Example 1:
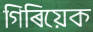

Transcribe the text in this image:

গিৰিয়েক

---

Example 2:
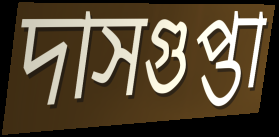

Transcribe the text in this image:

দাসগুপ্তা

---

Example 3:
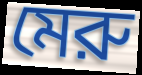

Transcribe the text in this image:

মেৰু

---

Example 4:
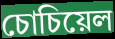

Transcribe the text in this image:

চোচিয়েল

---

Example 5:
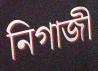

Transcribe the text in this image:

নিগাজী